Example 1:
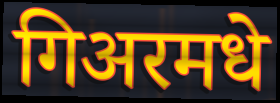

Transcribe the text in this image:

गिअरमधे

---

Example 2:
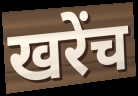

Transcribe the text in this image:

खरेंच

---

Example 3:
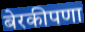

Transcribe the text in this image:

बेरकीपणा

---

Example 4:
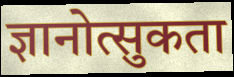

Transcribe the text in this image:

ज्ञानोत्सुकता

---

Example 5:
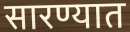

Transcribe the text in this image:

सारण्यात